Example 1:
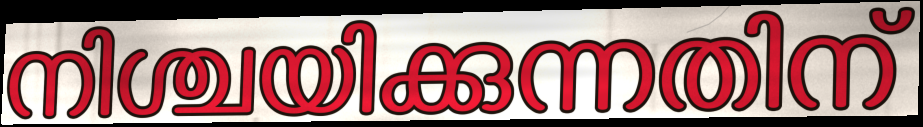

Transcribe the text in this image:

നിശ്ചയിക്കുന്നതിന്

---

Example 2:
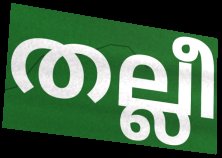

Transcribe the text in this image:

തല്ലീ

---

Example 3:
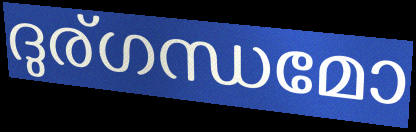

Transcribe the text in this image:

ദുര്ഗന്ധമോ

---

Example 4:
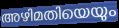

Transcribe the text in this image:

അഴിമതിയെയും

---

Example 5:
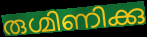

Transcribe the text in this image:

രുഗ്മിണിക്കു